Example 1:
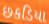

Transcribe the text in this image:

છકડિયા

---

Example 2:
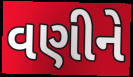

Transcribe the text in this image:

વણીને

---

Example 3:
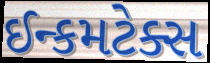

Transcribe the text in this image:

ઈન્કમટેક્સ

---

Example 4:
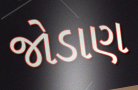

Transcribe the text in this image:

જોડાણ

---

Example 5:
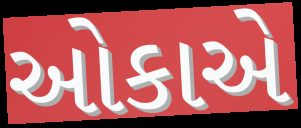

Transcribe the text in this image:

ઓકાએ